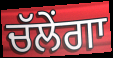
ਚੱਲੇਂਗਾ